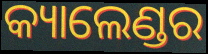
କ୍ୟାଲେଣ୍ଡର